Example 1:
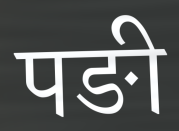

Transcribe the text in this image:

पङी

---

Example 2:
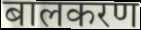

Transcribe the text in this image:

बालकरण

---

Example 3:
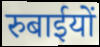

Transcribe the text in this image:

रुबाईयों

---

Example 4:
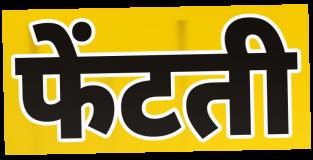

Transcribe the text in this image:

फेंटती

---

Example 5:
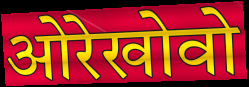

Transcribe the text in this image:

ओरेखोवो